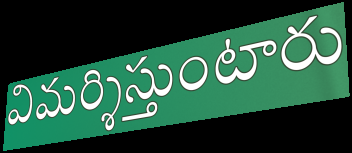
విమర్శిస్తుంటారు